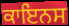
ਕਾਇਨਸ